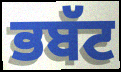
ਭਬੱਟ